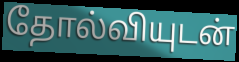
தோல்வியுடன்